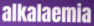
alkalaemia